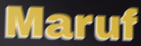
Maruf